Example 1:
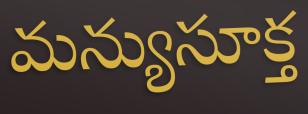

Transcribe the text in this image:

మన్యుసూక్త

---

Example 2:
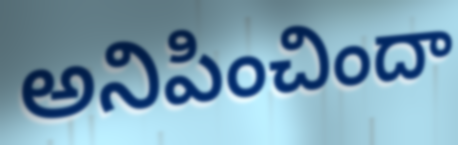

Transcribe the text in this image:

అనిపించిందా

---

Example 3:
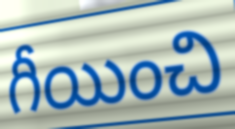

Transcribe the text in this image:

గీయించి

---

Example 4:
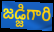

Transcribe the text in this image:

జడ్జిగారి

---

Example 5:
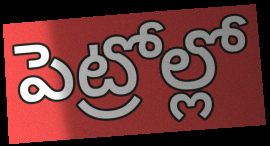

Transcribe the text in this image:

పెట్రోల్లో